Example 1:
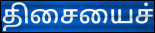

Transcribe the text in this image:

திசையைச்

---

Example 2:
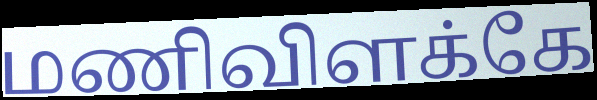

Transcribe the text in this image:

மணிவிளக்கே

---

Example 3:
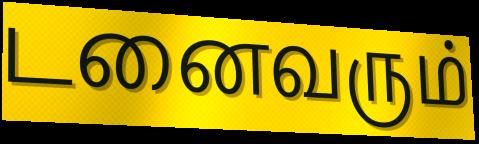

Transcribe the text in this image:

டனைவரும்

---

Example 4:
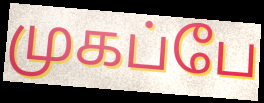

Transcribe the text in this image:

முகப்பே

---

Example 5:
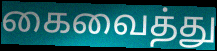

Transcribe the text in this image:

கைவைத்து